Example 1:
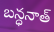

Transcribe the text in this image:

బన్ధనాత్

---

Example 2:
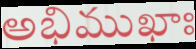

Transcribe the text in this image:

అభిముఖాః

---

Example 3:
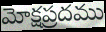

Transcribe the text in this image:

మోక్షప్రదము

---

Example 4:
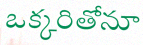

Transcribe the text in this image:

ఒక్కరితోనూ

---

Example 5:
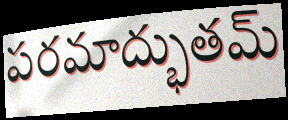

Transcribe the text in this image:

పరమాద్భుతమ్